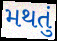
મથતું